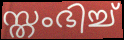
സ്തംഭിച്ച്